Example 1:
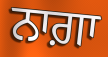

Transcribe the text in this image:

ਨਾਗ਼ਾ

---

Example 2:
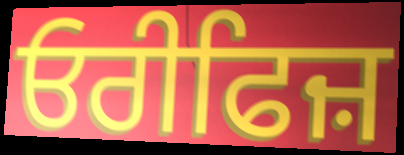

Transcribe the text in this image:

ਓਰੀਫਿਜ਼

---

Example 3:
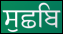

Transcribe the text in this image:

ਸੁਛਬਿ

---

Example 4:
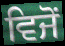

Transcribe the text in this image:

ਵਿਜੋਂ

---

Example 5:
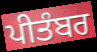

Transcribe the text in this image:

ਪੀਤੰਬਰ